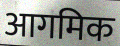
आगमिक